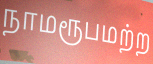
நாமரூபமற்ற